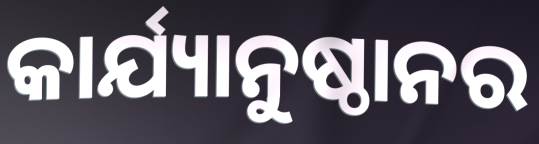
କାର୍ଯ୍ୟାନୁଷ୍ଠାନର